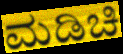
ಮಡಿಚಿ